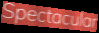
Spectacular